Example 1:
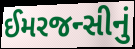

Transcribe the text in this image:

ઈમરજન્સીનું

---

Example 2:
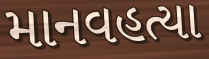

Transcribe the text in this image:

માનવહત્યા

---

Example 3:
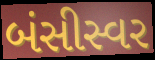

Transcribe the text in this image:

બંસીસ્વર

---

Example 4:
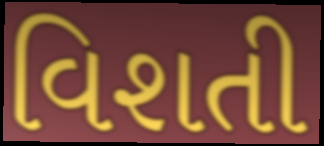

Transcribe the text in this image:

વિશતી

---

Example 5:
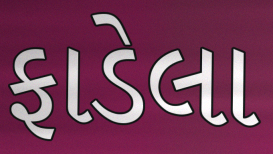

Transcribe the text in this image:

ફાડેલા